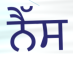
ਨੈੱਸ